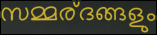
സമ്മര്ദങ്ങളും